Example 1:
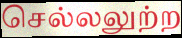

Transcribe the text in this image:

செல்லலுற்ற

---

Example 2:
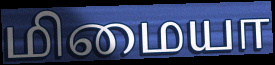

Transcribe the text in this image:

மிமையா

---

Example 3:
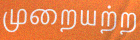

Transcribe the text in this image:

முறையற்ற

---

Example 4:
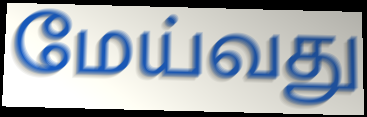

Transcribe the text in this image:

மேய்வது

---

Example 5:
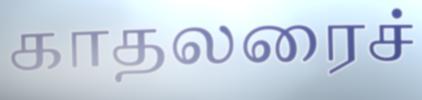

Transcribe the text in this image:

காதலரைச்